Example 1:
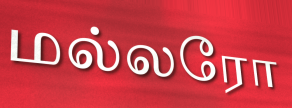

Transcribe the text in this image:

மல்லரோ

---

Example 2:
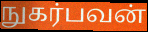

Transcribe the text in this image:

நுகர்பவன்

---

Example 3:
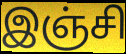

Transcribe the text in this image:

இஞ்சி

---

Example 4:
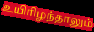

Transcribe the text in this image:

உயிரிழந்தாலும்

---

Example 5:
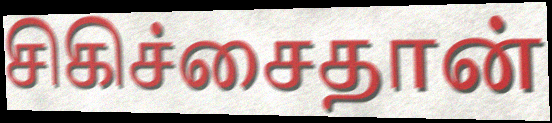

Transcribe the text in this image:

சிகிச்சைதான்